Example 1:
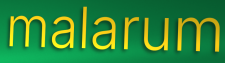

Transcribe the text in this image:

malarum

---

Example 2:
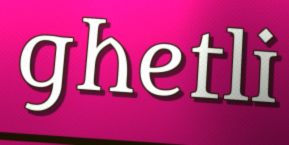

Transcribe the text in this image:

ghetli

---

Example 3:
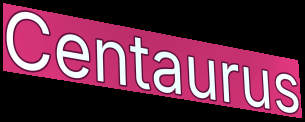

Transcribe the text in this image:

Centaurus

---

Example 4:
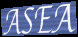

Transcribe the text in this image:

ASEA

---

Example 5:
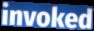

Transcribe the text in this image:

invoked